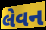
લેવન